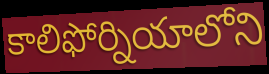
కాలిఫోర్నియాలోని